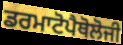
ਡਰਮਾਟੋਪੈਥੋਲੋਜੀ